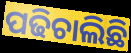
ପଢିଚାଲିଛି